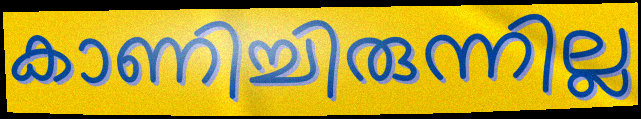
കാണിച്ചിരുന്നില്ല